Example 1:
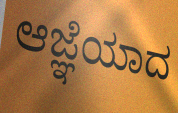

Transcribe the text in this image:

ಆಜ್ಞೆಯಾದ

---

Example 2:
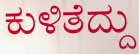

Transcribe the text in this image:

ಕುಳಿತೆದ್ದು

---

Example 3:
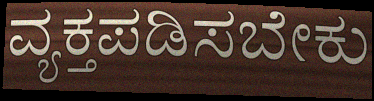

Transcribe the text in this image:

ವ್ಯಕ್ತಪಡಿಸಬೇಕು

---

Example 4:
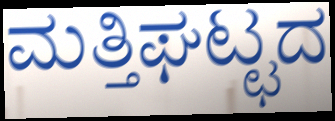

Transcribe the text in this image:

ಮತ್ತಿಘಟ್ಟದ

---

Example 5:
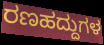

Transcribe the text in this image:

ರಣಹದ್ದುಗಳ